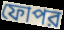
ফোপর